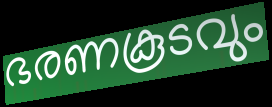
ഭരണകൂടവും